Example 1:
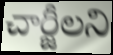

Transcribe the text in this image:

చార్జీలని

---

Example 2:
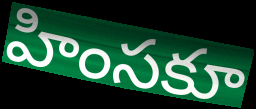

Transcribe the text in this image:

హింసకూ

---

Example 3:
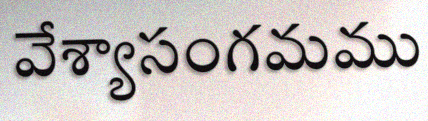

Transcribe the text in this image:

వేశ్యాసంగమము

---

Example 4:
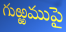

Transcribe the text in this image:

గుఱ్ఱముపై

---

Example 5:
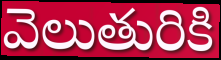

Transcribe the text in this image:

వెలుతురికి